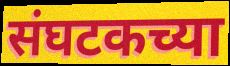
संघटकच्या